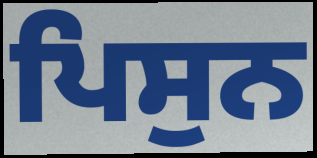
ਪਿਸੁਨ